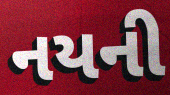
નયની